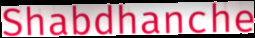
Shabdhanche